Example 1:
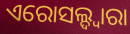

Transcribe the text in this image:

ଏରୋସଲ୍ଦ୍ୱାରା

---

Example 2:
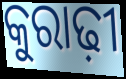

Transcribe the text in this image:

କୁରାଢ଼ୀ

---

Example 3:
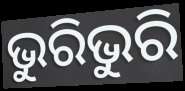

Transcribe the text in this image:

ଭୁରିଭୁରି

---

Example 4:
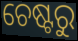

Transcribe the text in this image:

ଚେଷ୍ଟରୁ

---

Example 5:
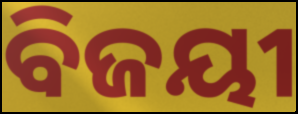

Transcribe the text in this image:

ବିଜୟୀ